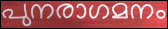
പുനരാഗമനം